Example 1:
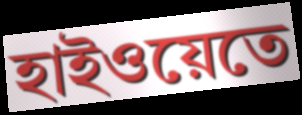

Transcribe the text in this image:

হাইওয়েতে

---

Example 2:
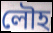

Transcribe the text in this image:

লৌহ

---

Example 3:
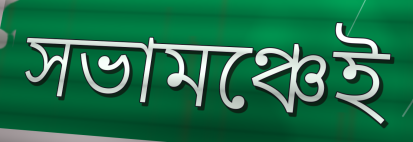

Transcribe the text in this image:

সভামঞ্চেই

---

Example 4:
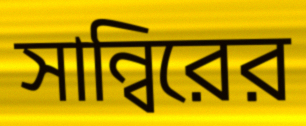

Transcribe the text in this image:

সান্বিরের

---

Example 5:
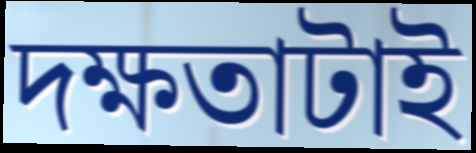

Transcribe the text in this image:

দক্ষতাটাই